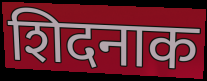
शिदनाक